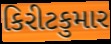
કિરીટકુમાર